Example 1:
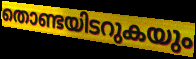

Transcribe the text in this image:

തൊണ്ടയിടറുകയും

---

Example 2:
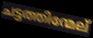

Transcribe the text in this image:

ചട്ടത്തിന്മേല്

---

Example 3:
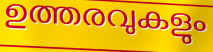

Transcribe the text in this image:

ഉത്തരവുകളും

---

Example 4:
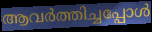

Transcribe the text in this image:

ആവർത്തിച്ചപ്പോൾ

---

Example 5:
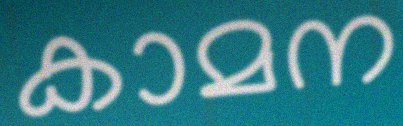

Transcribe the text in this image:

കാമന